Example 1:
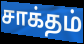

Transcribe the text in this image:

சாக்தம்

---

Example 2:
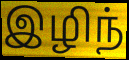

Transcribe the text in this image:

இழிந்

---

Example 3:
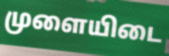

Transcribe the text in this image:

முளையிடை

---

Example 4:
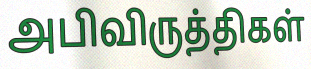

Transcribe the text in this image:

அபிவிருத்திகள்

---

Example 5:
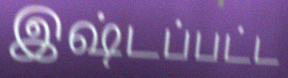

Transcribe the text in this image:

இஷ்டப்பட்ட